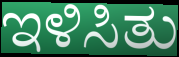
ಇಳಿಸಿತು